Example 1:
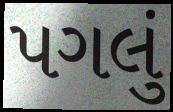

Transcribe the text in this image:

પગલું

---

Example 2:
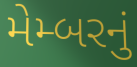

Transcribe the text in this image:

મેમ્બરનું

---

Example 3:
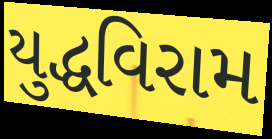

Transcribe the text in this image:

યુદ્ધવિરામ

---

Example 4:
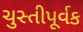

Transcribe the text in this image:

ચુસ્તીપૂર્વક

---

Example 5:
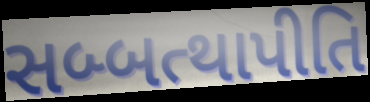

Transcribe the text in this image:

સબ્બત્થાપીતિ